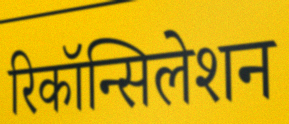
रिकॉन्सिलेशन